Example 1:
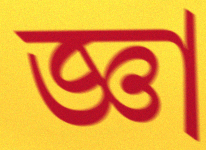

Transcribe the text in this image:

জ্ঞা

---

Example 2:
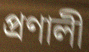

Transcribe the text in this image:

প্ৰণালী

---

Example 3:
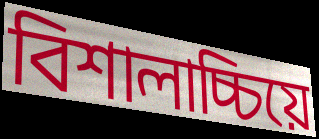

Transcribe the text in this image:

বিশালাচ্চিয়ে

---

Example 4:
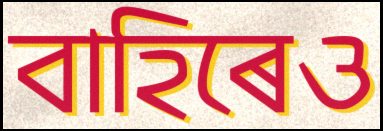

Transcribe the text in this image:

বাহিৰেও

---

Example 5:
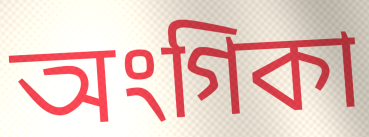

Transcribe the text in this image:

অংগিকা